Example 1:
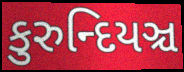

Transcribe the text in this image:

કુરુન્દિયઞ્ચ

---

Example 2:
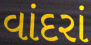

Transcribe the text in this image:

વાંદરાં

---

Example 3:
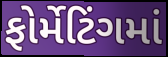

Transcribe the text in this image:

ફોર્મેટિંગમાં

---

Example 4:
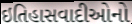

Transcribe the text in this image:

ઇતિહાસવાદીઓનો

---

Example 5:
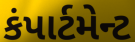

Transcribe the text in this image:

કંપાર્ટમેન્ટ